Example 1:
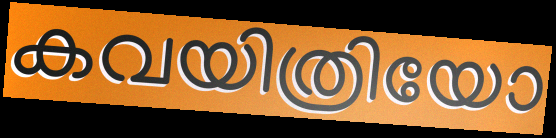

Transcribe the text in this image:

കവയിത്രിയോ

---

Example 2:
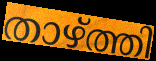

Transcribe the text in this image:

താഴ്ത്തി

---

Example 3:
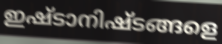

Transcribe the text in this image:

ഇഷ്ടാനിഷ്ടങ്ങളെ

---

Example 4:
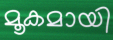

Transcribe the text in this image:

മൂകമായി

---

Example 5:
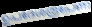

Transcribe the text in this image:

ഉപദേശരൂപേണ